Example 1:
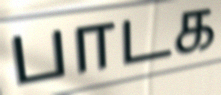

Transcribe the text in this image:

பாடக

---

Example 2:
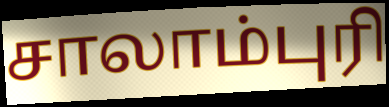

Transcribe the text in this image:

சாலாம்புரி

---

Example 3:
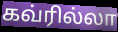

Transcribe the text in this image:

கவ்ரில்லா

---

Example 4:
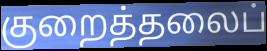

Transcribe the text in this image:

குறைத்தலைப்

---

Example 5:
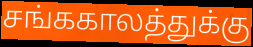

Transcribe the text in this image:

சங்ககாலத்துக்கு